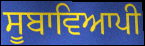
ਸੂਬਾਵਿਆਪੀ